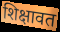
शिक्षावत